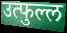
उत्फुल्ल